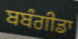
ਬਬੰਗੀਡਾ